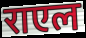
राएल